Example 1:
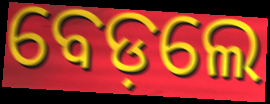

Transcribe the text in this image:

ବେଡ଼ଲେ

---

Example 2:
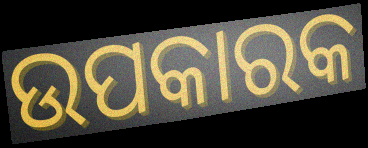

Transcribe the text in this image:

ଉପକାରକ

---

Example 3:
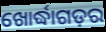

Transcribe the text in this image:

ଖୋର୍ଦ୍ଧାଗଡ଼ର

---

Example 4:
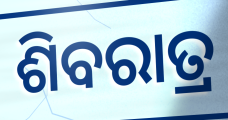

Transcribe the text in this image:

ଶିବରାତ୍ର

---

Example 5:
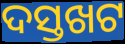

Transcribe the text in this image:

ଦସ୍ତଖଟ